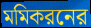
মমিকরনের